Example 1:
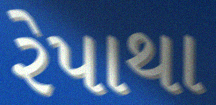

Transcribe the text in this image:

રેપાથા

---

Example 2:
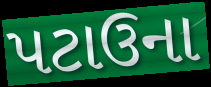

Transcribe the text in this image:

પટાઉના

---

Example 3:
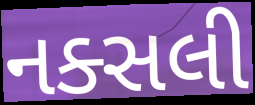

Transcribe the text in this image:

નક્સલી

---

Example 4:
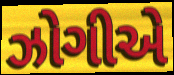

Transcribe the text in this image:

ઝોગીએ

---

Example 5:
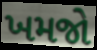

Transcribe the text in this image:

ખમજો